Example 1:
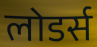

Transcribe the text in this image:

लोडर्स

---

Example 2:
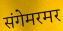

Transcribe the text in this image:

संगेमरमर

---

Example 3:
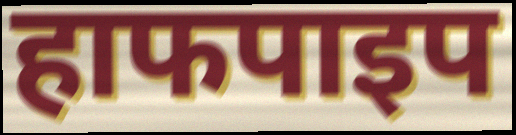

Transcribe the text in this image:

हाफपाइप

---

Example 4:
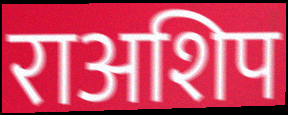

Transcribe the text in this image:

राअशिप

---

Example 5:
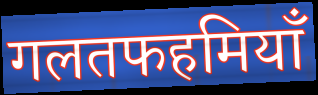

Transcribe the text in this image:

गलतफहमियाँ